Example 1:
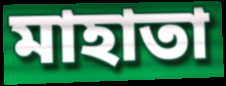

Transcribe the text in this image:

মাহাতা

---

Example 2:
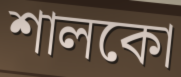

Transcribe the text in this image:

শালকো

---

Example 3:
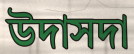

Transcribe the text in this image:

উদাসদা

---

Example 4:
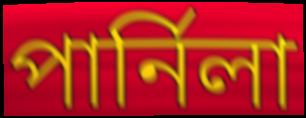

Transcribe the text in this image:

পার্নিলা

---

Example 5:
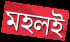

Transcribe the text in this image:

মহলই